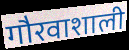
गौरवाशाली